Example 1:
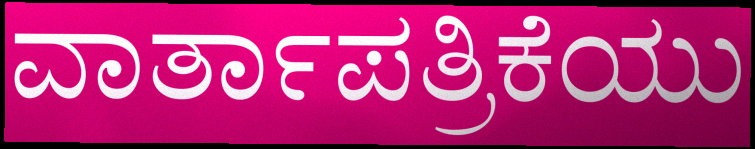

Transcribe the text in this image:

ವಾರ್ತಾಪತ್ರಿಕೆಯು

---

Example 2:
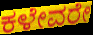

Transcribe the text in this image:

ಕಳೇವರೇ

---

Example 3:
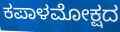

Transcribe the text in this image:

ಕಪಾಳಮೋಕ್ಷದ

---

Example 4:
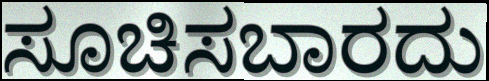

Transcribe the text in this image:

ಸೂಚಿಸಬಾರದು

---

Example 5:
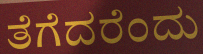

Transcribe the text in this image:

ತೆಗೆದರೆಂದು